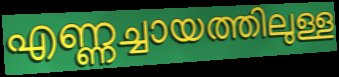
എണ്ണച്ചായത്തിലുള്ള